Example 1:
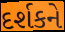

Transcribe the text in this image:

દર્શકને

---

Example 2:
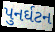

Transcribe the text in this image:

પુનર્ઘટન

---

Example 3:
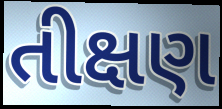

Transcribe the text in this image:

તીક્ષણ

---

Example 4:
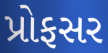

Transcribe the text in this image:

પ્રોફસર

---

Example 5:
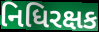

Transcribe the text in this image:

નિધિરક્ષક